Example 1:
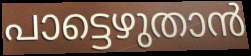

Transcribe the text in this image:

പാട്ടെഴുതാൻ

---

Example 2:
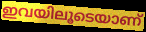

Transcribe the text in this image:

ഇവയിലൂടെയാണ്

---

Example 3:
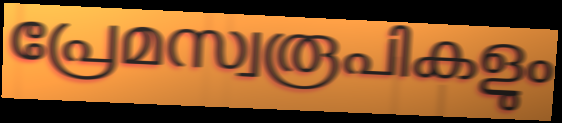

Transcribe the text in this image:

പ്രേമസ്വരൂപികളും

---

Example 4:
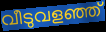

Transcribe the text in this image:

വീടുവളഞ്ഞ്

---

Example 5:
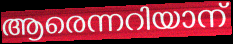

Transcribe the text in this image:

ആരെന്നറിയാന്